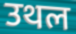
उथल